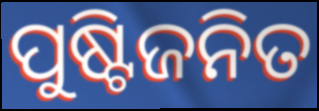
ପୁଷ୍ଟିଜନିତ